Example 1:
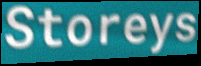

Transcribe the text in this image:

Storeys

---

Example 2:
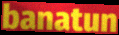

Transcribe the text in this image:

banatun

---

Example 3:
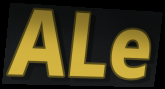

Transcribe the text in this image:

ALe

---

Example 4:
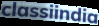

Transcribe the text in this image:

classiindia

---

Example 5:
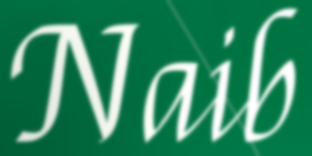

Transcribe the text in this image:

Naib